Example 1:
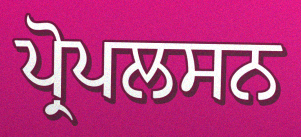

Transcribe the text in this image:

ਪ੍ਰੋਪਲਸਨ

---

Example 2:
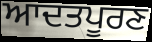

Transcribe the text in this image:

ਆਦਤਪੂਰਣ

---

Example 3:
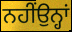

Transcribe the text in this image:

ਨਹੀਂਉਨ੍ਹਾਂ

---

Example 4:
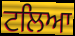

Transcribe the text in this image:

ਟਲਿਆ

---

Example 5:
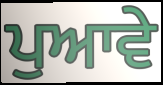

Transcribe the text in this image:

ਪੁਆਵੇ